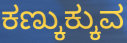
ಕಣ್ಕುಕ್ಕುವ